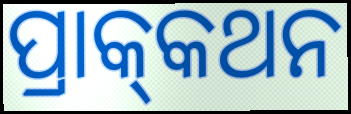
ପ୍ରାକ୍‌କଥନ